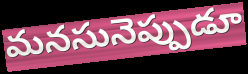
మనసునెప్పుడూ